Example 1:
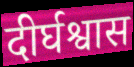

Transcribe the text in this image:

दीर्घश्वास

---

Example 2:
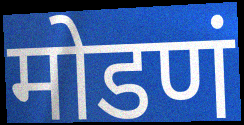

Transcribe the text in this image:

मोडणं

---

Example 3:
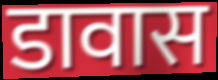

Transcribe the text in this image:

डावास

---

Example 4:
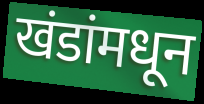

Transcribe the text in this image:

खंडांमधून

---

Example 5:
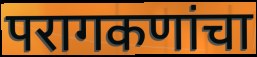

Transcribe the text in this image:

परागकणांचा